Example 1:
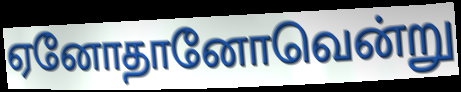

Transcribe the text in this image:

ஏனோதானோவென்று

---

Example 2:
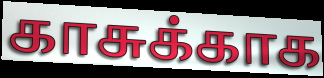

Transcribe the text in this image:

காசுக்காக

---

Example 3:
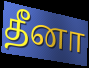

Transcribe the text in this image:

தீனா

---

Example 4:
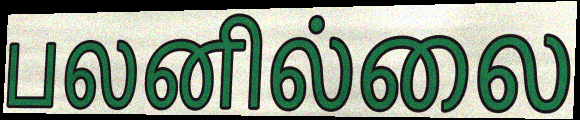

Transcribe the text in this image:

பலனில்லை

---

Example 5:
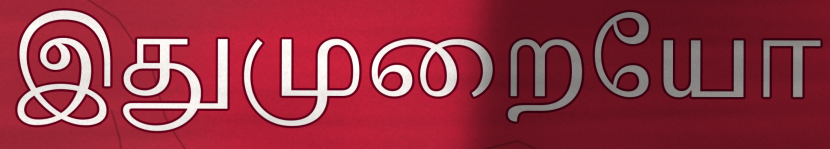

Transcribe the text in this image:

இதுமுறையோ